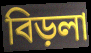
বিড়লা